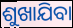
ଶୁଖାଯିବା